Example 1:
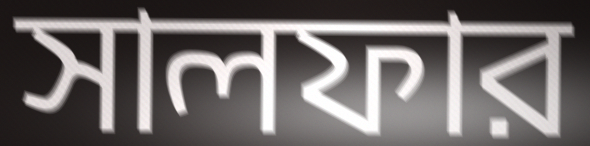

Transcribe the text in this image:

সালফার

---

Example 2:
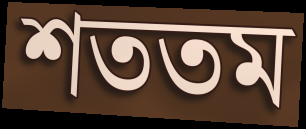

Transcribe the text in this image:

শততম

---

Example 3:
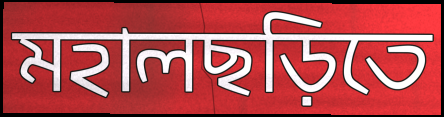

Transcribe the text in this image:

মহালছড়িতে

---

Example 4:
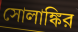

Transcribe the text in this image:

সোলাঙ্কির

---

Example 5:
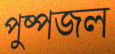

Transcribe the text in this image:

পুষ্পজল